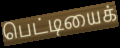
பெட்டியைக்